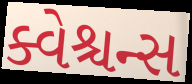
ક્વેશ્ચન્સ